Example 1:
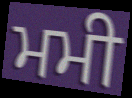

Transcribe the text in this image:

ਮਮੀ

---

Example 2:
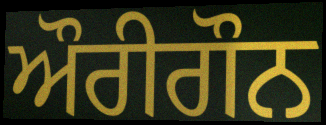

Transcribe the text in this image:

ਔਰੀਗੌਨ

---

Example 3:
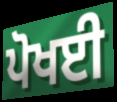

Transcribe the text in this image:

ਪੋਖਈ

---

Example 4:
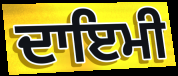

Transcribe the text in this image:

ਦਾਇਮੀ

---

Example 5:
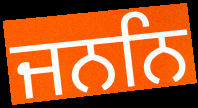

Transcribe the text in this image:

ਜਨਨਿ